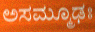
ಅಸಮ್ಮೂಢಃ